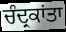
ਚੰਦ੍ਰਕਾਂਤਾ